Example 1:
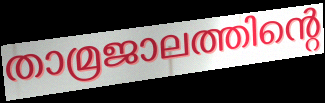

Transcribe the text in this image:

താമ്രജാലത്തിന്റെ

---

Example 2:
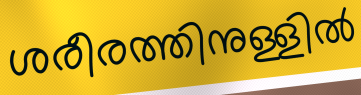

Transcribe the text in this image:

ശരീരത്തിനുള്ളിൽ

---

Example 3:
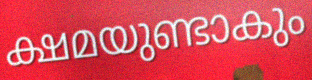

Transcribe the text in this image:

ക്ഷമയുണ്ടാകും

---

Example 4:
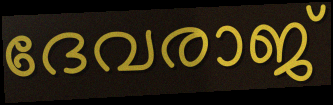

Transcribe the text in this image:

ദേവരാജ്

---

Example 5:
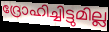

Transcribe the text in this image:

ദ്രോഹിച്ചിട്ടുമില്ല